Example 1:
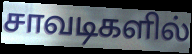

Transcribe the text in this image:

சாவடிகளில்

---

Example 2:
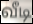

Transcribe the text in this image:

வீடி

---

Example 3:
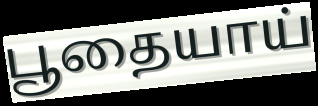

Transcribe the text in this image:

பூதையாய்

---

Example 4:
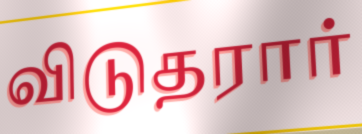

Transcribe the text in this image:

விடுதரார்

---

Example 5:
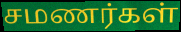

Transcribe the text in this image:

சமணர்கள்